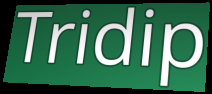
Tridip